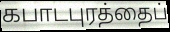
கபாடபுரத்தைப்